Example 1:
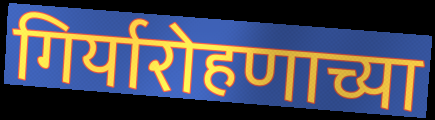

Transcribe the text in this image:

गिर्यारोहणाच्या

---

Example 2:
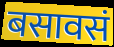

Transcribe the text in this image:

बसावसं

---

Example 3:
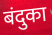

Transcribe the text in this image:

बंदुका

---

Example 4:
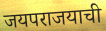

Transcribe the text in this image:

जयपराजयाची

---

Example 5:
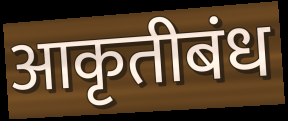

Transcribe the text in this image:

आकृतीबंध